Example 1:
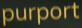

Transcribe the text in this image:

purport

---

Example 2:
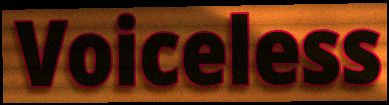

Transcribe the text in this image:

Voiceless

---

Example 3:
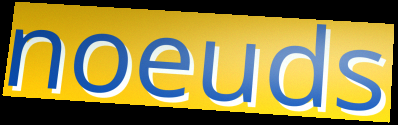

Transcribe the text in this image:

noeuds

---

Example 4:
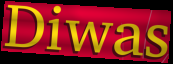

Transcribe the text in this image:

Diwas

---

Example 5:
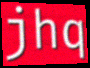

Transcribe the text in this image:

jhq